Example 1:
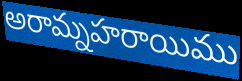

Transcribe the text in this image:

అరామ్నహరాయిము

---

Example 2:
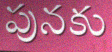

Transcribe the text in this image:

పునకు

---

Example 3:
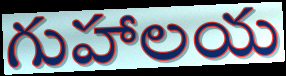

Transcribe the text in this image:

గుహాలయ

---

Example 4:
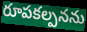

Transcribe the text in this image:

రూపకల్పనను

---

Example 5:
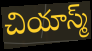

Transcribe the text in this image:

చియాస్మ్